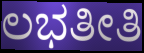
ಲಭತೀತಿ